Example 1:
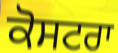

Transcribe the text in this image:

ਕੋਸਟਰਾ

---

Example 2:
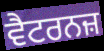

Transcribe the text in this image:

ਵੈਟਰਨਜ਼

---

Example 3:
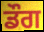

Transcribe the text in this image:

ਡੌਗ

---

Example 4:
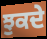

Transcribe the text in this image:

ਝੁਕਦੇ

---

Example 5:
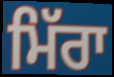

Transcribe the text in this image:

ਮਿੱਰਾ